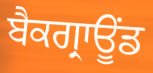
ਬੈਕਗ੍ਰਾਊਂਡ